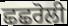
ਛਛਰੋਲੀ